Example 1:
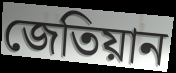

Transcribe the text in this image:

জেতিয়ান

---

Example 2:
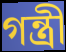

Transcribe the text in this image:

গন্ত্রী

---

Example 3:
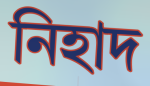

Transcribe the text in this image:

নিহাদ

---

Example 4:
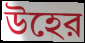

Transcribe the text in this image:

উহের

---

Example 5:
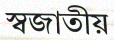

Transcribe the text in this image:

স্বজাতীয়